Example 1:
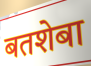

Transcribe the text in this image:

बतशेबा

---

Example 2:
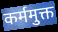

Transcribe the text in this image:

कर्ममुक्त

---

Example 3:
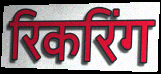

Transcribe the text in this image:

रिकरिंग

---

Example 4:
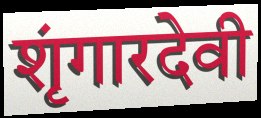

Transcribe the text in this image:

शृंगारदेवी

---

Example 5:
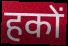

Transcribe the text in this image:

हकों